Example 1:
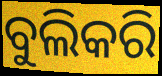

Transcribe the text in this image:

ବୁଲିକରି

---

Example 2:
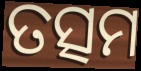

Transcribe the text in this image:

ତତ୍ସମ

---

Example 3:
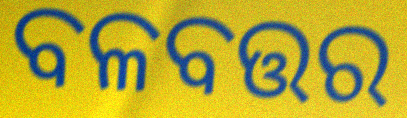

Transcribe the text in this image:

ବଳବତ୍ତର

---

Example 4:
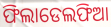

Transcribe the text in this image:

ଫିଲାଡେଲଫିଆ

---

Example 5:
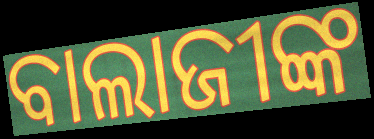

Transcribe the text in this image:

ବାଲାଜୀଙ୍କ